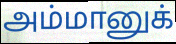
அம்மானுக்